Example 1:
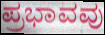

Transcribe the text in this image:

ಪ್ರಭಾವವು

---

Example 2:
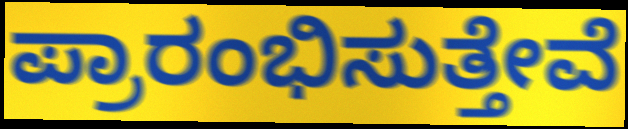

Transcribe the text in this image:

ಪ್ರಾರಂಭಿಸುತ್ತೇವೆ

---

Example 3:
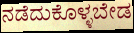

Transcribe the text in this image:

ನಡೆದುಕೊಳ್ಳಬೇಡ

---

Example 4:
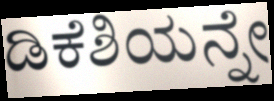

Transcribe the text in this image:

ಡಿಕೆಶಿಯನ್ನೇ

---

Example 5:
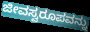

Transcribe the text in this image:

ಜೀವಸ್ವರೂಪವನ್ನು